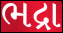
ભદ્રા